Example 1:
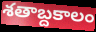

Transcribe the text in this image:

శతాబ్దకాలం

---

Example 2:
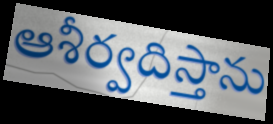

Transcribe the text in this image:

ఆశీర్వదిస్తాను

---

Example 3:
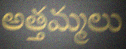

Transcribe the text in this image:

అత్తమ్మలు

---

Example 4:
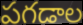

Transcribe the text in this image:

పగడాల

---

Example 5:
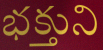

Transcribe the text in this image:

భక్తుని